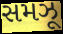
સમઝૂ